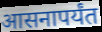
आसनापर्यंत